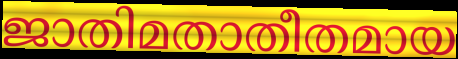
ജാതിമതാതീതമായ